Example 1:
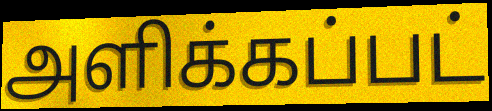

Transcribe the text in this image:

அளிக்கப்பட்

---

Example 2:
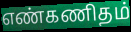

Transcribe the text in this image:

எண்கணிதம்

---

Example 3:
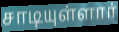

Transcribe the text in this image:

சாடியுள்ளார்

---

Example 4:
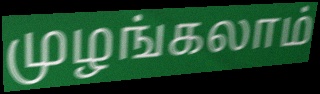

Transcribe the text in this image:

முழங்கலாம்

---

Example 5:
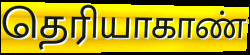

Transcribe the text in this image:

தெரியாகாண்